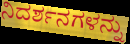
ನಿದರ್ಶನಗಳನ್ನು